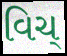
વિચ્